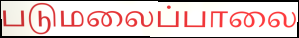
படுமலைப்பாலை